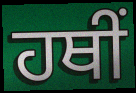
ਹਥੀਂ